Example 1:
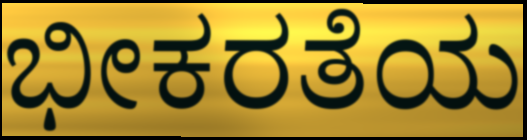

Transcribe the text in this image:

ಭೀಕರತೆಯ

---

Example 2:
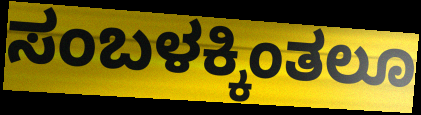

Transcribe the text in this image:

ಸಂಬಳಕ್ಕಿಂತಲೂ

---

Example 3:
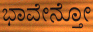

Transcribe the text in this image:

ಭಾವೇನ್ತೋ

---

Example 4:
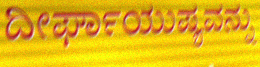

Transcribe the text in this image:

ದೀರ್ಘಾಯುಷ್ಯವನ್ನು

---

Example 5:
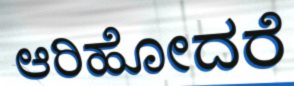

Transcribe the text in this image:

ಆರಿಹೋದರೆ